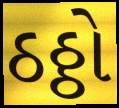
ઠઠ્ઠો